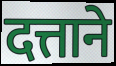
दत्ताने